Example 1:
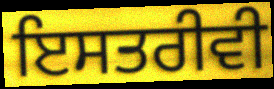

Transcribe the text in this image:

ਇਸਤਰੀਵੀ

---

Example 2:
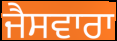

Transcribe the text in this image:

ਜੈਸਵਾਰਾ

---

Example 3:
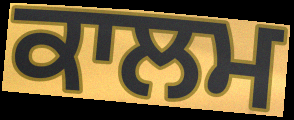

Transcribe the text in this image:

ਕਾਲਮ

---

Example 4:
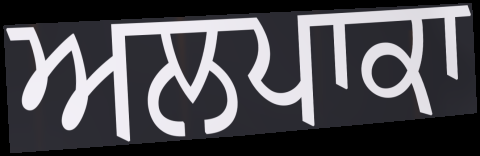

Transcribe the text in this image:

ਅਲਪਾਕਾ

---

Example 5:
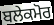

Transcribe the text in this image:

ਬਲੇਕਮੋਰ